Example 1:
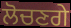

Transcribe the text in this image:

ਲੋਚਣਗੇ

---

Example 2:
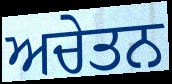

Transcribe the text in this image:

ਅਚੇਤਨ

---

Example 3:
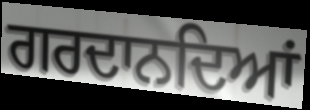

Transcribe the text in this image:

ਗਰਦਾਨਦਿਆਂ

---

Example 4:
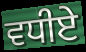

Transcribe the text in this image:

ਵਧੀਏ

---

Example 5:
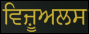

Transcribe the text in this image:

ਵਿਜ਼ੂਅਲਸ